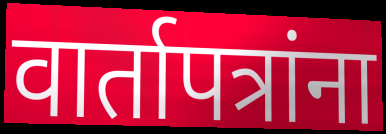
वार्तापत्रांना